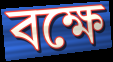
বক্ষে